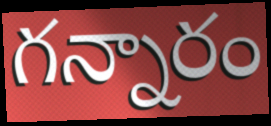
గన్నారం